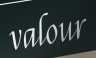
valour